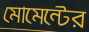
মোমেন্টের